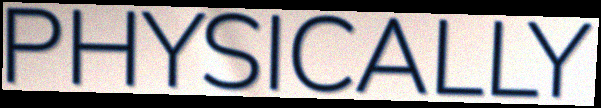
PHYSICALLY